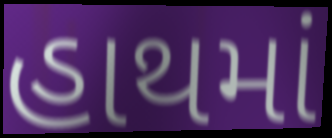
હાથમાં